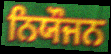
ਨਿਯੌਜਨ